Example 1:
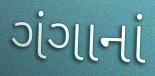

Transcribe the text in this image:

ગંગાનાં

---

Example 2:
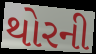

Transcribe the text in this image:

થોરની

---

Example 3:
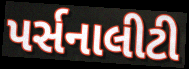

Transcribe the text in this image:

પર્સનાલીટી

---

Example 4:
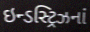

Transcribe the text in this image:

ઇન્ડસ્ટ્રિઝનાં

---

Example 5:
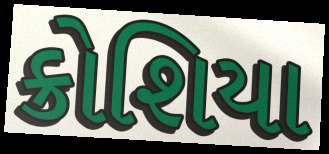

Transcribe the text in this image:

ક્રોશિયા